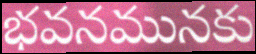
భవనమునకు